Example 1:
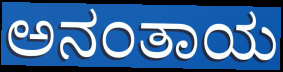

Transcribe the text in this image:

ಅನಂತಾಯ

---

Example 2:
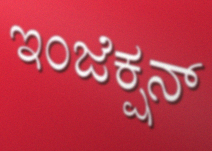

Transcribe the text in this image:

ಇಂಜೆಕ್ಷನ್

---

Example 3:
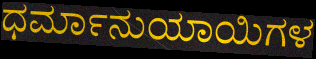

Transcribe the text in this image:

ಧರ್ಮಾನುಯಾಯಿಗಳ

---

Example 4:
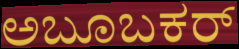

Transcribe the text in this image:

ಅಬೂಬಕರ್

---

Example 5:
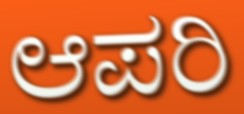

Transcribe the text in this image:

ಆಪರಿ